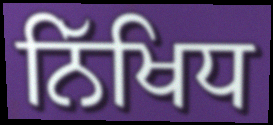
ਨਿੱਖਿਧ